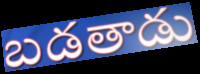
బడతాడు